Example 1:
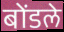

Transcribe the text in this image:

बोंडले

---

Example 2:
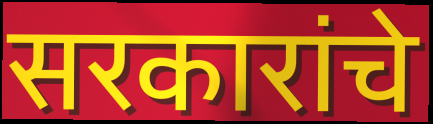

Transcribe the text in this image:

सरकारांचे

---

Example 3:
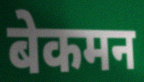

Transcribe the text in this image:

बेकमन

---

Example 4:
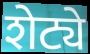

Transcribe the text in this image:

शेट्ये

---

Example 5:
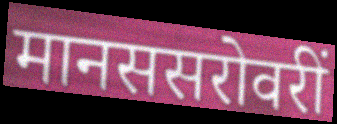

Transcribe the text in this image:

मानससरोवरीं